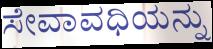
ಸೇವಾವಧಿಯನ್ನು